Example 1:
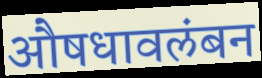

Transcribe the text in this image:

औषधावलंबन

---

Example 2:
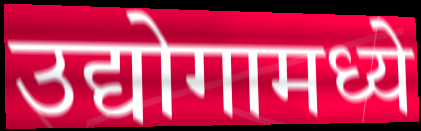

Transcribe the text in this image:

उद्योगामध्ये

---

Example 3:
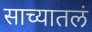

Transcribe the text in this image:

साच्यातलं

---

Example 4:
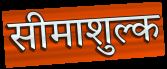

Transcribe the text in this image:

सीमाशुल्क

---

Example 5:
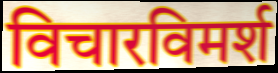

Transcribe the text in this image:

विचारविमर्श